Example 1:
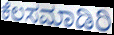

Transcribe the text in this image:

ಕೆಲಸಮಾಡಿರಿ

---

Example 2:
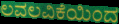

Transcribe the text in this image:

ಲವಲವಿಕೆಯಿಂದ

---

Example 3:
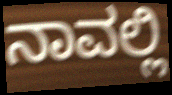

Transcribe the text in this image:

ನಾವಲ್ಲಿ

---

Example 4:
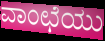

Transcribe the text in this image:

ವಾಂಛೆಯು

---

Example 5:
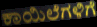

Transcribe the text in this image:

ಕಾಯಿಲೆಗಳಿಗೆ